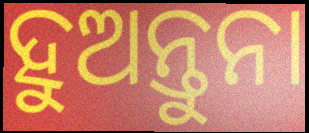
ହୁଅନ୍ତୁନା